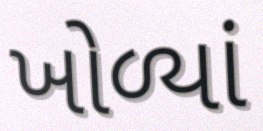
ખોળ્યાં